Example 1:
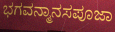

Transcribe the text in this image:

ಭಗವನ್ಮಾನಸಪೂಜಾ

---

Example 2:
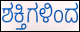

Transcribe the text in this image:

ಶಕ್ತಿಗಳಿಂದ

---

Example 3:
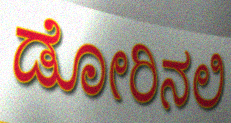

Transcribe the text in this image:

ಡೋರಿನಲಿ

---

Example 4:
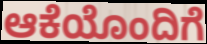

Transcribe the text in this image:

ಆಕೆಯೊಂದಿಗೆ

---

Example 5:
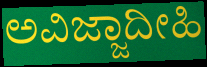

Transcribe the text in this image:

ಅವಿಜ್ಜಾದೀಹಿ